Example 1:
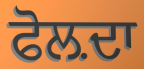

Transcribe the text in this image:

ਫੋਲ਼ਦਾ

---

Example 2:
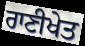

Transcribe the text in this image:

ਰਾਣੀਖੇਤ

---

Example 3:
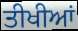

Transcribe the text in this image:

ਤੀਖੀਆਂ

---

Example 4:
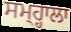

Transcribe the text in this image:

ਸਮ੍ਹ੍ਹਾਲਾ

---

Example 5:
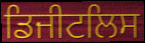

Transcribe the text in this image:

ਡਿਜੀਟਲਿਸ